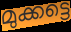
മുക്കട്ടെ